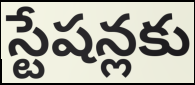
స్టేషన్లకు